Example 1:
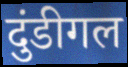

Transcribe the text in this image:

दुंडीगल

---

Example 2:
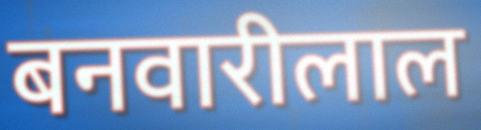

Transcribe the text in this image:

बनवारीलाल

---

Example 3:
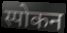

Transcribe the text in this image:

स्पोकन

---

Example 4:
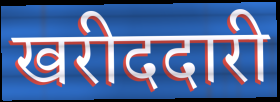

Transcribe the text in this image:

खरीददारी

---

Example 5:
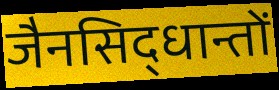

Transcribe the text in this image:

जैनसिद्धान्तों